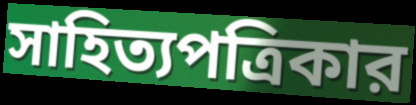
সাহিত্যপত্রিকার